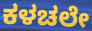
ಕಳಚಲೇ